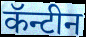
कॅन्टीन